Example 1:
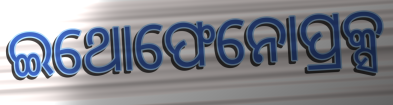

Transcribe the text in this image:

ଇଥୋଫେନୋପ୍ରକ୍ସ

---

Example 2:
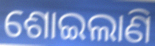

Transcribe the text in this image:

ଶୋଇଲାଣି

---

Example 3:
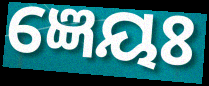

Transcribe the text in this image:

ଜ୍ଞେୟଃ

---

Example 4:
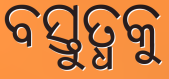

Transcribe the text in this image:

ବସ୍ତୁତ୍ଧକୁ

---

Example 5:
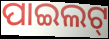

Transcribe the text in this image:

ପାଇଲଟ୍